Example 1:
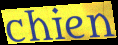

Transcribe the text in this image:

chien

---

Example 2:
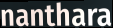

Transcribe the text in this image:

nanthara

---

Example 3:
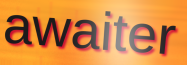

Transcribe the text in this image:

awaiter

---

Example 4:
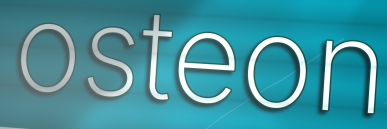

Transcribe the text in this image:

osteon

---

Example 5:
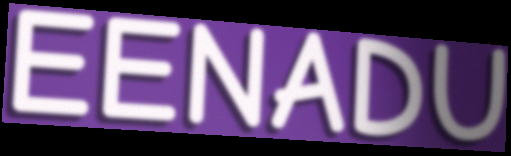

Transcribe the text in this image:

EENADU